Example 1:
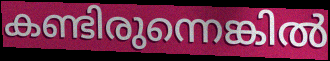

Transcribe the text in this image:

കണ്ടിരുന്നെങ്കിൽ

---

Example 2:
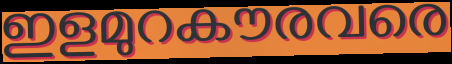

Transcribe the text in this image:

ഇളമുറകൗരവരെ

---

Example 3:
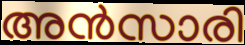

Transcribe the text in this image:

അൻസാരി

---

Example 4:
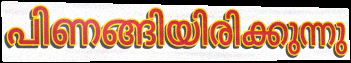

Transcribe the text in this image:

പിണങ്ങിയിരിക്കുന്നു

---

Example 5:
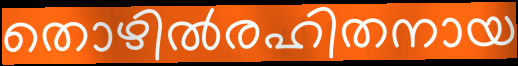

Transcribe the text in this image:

തൊഴിൽരഹിതനായ